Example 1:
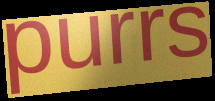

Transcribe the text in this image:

purrs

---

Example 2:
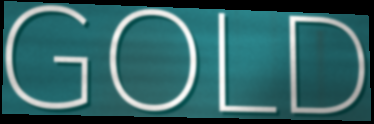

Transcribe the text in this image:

GOLD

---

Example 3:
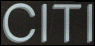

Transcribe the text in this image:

CITI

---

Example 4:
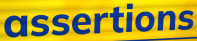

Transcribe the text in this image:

assertions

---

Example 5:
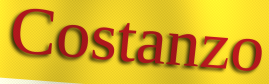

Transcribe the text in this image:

Costanzo